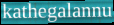
kathegalannu